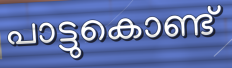
പാട്ടുകൊണ്ട്